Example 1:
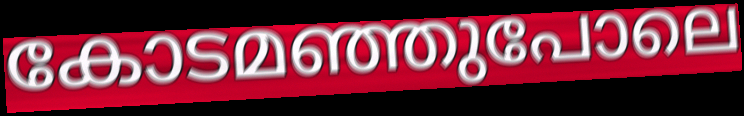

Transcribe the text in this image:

കോടമഞ്ഞുപോലെ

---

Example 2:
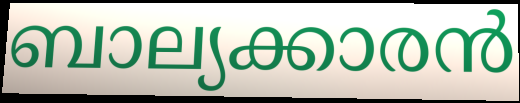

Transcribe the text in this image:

ബാല്യക്കാരൻ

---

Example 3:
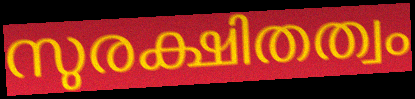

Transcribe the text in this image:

സുരക്ഷിതത്വം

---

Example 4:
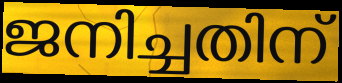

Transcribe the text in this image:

ജനിച്ചതിന്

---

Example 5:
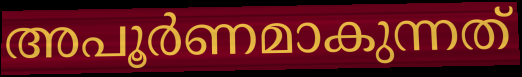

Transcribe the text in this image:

അപൂർണമാകുന്നത്